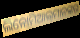
ଲିନୋମିଆଲ୍‌ମାନଙ୍କର